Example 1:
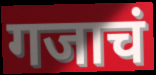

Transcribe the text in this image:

गजाचं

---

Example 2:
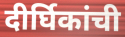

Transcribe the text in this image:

दीर्घिकांची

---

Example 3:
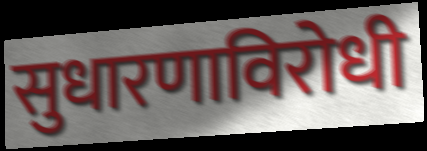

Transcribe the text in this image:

सुधारणाविरोधी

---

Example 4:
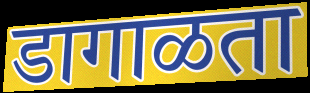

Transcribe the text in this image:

डागाळता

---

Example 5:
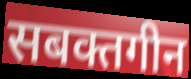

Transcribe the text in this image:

सबक्तगीन